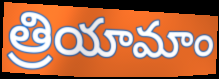
త్రియామాం